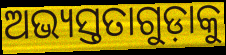
ଅଭ୍ୟସ୍ତତାଗୁଡ଼ାକୁ